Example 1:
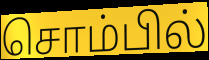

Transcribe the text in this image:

சொம்பில்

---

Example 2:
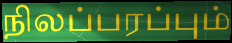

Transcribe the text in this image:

நிலப்பரப்பும்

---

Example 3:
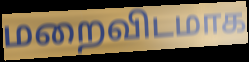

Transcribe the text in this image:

மறைவிடமாக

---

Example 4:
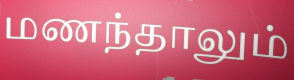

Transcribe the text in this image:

மணந்தாலும்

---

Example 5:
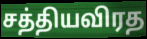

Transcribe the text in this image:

சத்தியவிரத